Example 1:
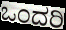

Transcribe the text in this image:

ಒಂದರಿ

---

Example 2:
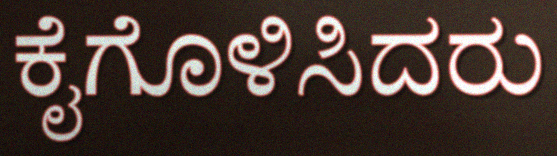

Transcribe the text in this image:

ಕೈಗೊಳಿಸಿದರು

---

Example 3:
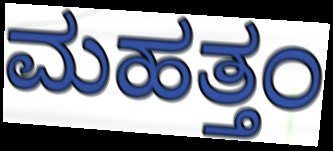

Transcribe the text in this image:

ಮಹತ್ತಂ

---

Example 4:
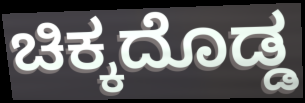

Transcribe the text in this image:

ಚಿಕ್ಕದೊಡ್ಡ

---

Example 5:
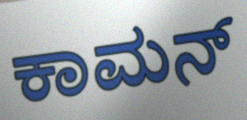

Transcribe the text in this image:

ಕಾಮನ್